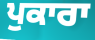
ਪੁਕਾਰਾ